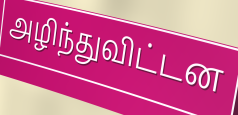
அழிந்துவிட்டன